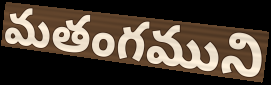
మతంగముని